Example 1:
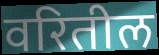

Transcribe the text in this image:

वरितील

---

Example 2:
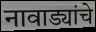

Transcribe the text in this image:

नावाड्यांचे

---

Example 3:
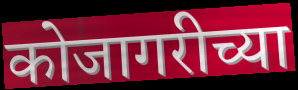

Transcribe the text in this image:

कोजागरीच्या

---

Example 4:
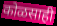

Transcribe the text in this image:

कोळसाही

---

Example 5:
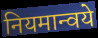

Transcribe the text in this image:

नियमान्वये